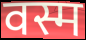
वस्म